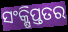
ସଂକ୍ଷିପ୍ତତର